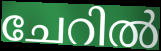
ചേറിൽ